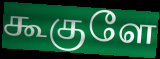
கூகுளே